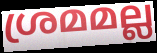
ശ്രമമല്ല